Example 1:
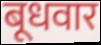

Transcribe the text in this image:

बूधवार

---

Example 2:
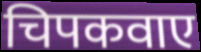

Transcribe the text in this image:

चिपकवाए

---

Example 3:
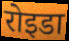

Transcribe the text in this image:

रोइडा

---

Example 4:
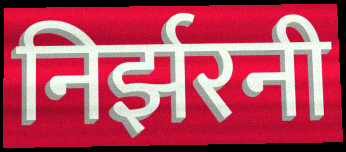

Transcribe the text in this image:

निर्झरनी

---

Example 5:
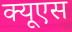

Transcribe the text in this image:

क्यूएस